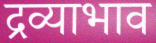
द्रव्याभाव